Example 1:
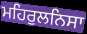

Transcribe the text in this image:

ਮਹਿਰੁਲਨਿਸਾ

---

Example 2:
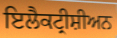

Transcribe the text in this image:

ਇਲੈਕਟ੍ਰੀਸ਼ੀਅਨ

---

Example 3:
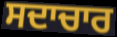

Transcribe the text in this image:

ਸਦਾਚਾਰ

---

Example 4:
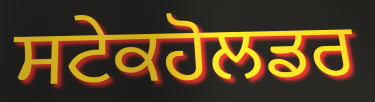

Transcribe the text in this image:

ਸਟੇਕਹੋਲਡਰ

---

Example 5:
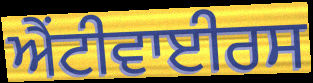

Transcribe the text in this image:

ਐਂਟੀਵਾਈਰਸ